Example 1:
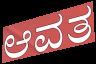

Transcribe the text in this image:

ಆವತ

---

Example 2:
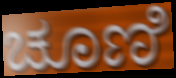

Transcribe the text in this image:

ಚೂಣಿ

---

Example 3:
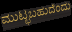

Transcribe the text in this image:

ಮುಟ್ಟಬಹುದೆಂದು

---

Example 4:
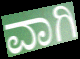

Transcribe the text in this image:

ವಾಗಿ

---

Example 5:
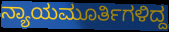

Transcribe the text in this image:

ನ್ಯಾಯಮೂರ್ತಿಗಳಿದ್ದ